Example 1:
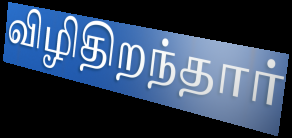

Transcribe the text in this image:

விழிதிறந்தார்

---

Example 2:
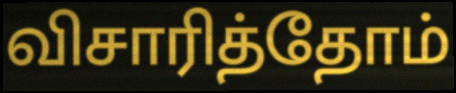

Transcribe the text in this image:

விசாரித்தோம்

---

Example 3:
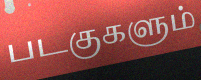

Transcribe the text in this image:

படகுகளும்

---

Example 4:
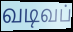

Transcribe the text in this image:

வடிவப்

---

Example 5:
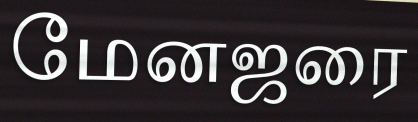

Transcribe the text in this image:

மேனஜரை